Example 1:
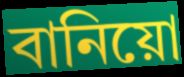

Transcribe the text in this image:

বানিয়ো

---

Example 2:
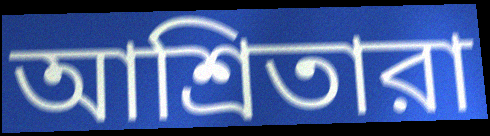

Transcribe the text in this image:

আশ্রিতারা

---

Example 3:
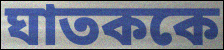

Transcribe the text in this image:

ঘাতককে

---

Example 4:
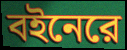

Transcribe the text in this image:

বইনেরে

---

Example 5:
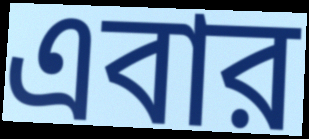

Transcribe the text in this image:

এবার